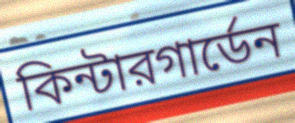
কিন্টারগার্ডেন